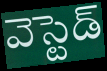
వెస్టెడ్